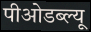
पीओडब्ल्यू